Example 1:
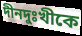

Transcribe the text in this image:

দীনদুঃখীকে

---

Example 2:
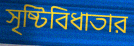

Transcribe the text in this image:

সৃষ্টিবিধাতার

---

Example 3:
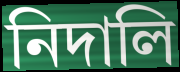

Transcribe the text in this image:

নিদালি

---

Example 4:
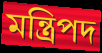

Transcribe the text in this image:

মন্ত্রিপদ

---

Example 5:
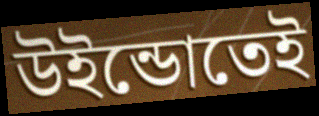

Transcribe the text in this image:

উইন্ডোতেই